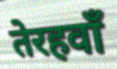
तेरहवाँ